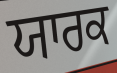
ਯਾਰਕ